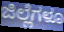
ಜಿಲ್ಲೆಗಳೂ